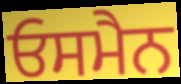
ਓਸਮੈਨ